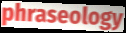
phraseology